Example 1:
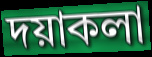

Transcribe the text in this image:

দয়াকলা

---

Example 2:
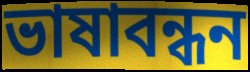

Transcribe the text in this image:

ভাষাবন্ধন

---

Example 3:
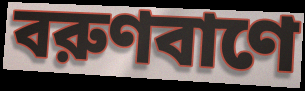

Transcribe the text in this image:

বরুণবাণে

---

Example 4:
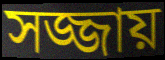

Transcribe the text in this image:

সজ্জায়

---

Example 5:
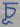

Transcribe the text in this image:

চূ